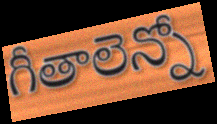
గీతాలెన్నో